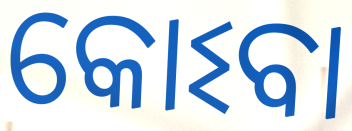
କୋଽବା